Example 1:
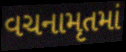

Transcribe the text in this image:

વચનામૃતમાં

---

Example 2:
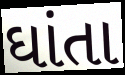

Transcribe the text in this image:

ઘાંતા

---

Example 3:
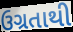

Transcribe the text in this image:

ઉગ્રતાથી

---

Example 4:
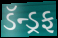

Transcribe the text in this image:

ડૅન્ડ્રફ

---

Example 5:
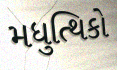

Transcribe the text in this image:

મધુત્થિકો